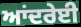
ਆਂਦਰੇਈ